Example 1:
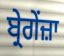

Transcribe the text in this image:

ਬ੍ਰੇਗੇਂਜ਼ਾ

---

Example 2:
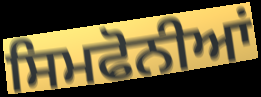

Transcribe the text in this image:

ਸਿਮਫੋਨੀਆਂ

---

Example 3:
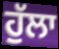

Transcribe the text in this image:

ਹੁੱਲਾ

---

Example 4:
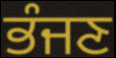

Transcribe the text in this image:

ਭੰਜਣ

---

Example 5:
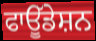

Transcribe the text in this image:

ਫਾਊੱਡੇਸ਼ਨ